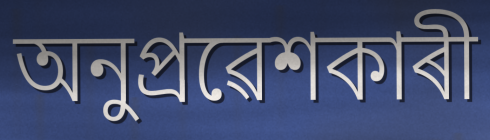
অনুপ্ৰৱেশকাৰী